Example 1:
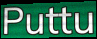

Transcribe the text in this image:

Puttu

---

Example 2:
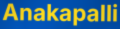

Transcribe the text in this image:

Anakapalli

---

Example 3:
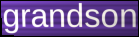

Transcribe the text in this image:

grandson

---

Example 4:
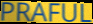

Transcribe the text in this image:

PRAFUL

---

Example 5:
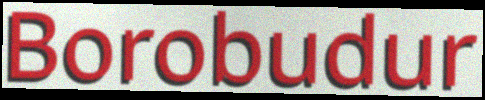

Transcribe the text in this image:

Borobudur